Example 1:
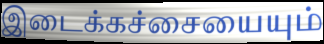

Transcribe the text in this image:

இடைக்கச்சையையும்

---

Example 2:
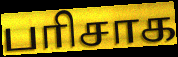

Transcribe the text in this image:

பரிசாக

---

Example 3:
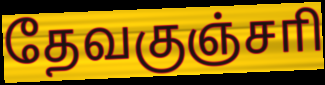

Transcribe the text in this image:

தேவகுஞ்சரி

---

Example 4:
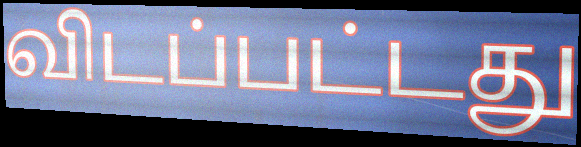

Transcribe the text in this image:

விடப்பட்டது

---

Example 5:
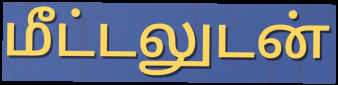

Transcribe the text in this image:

மீட்டலுடன்